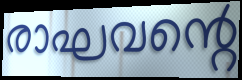
രാഘവന്റെ